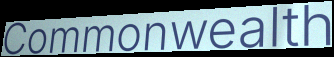
Commonwealth